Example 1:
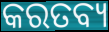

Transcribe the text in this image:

କରତବ୍ୟ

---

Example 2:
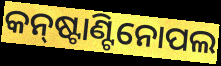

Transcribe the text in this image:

କନ୍‌ଷ୍ଟାଣ୍ଟିନୋପଲ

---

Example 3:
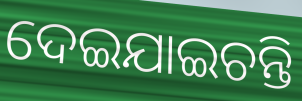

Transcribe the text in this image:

ଦେଇଯାଇଚନ୍ତି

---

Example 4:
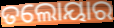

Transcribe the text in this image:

ତଲୋୟାର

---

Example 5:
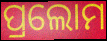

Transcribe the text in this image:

ପ୍ରଲୋମ